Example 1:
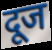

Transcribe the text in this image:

दूज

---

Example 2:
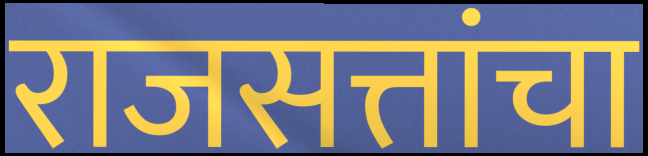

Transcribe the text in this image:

राजसत्तांचा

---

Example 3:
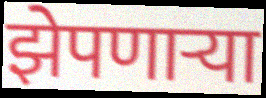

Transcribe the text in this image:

झेपणार्‍या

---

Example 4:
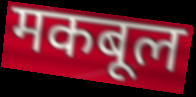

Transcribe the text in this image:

मकबूल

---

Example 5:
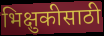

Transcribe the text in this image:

भिक्षुकीसाठी